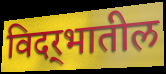
विदर्भातील